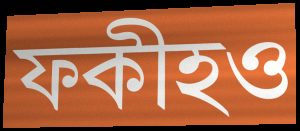
ফকীহও